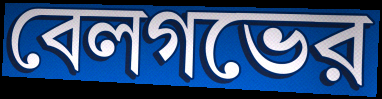
বেলগভের